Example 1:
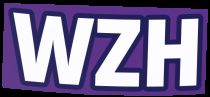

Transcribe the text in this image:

WZH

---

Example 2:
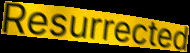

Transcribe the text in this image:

Resurrected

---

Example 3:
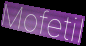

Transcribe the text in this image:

Mofetil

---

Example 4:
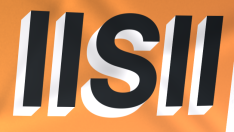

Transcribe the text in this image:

IISII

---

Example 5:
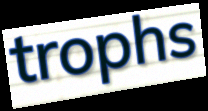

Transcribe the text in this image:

trophs